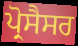
ਪ੍ਰੋਸੈਸਰ